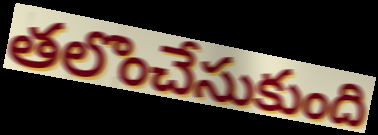
తలొంచేసుకుంది